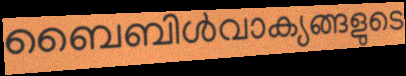
ബൈബിൾവാക്യങ്ങളുടെ